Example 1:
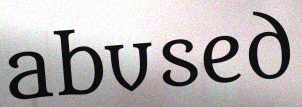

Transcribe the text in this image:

abused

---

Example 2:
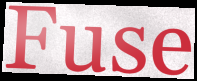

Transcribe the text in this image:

Fuse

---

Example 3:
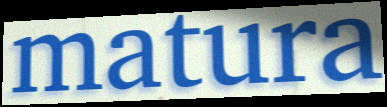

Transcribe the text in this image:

matura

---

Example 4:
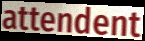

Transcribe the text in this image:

attendent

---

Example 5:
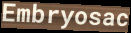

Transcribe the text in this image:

Embryosac